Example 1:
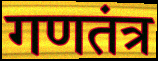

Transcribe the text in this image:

गणतंत्र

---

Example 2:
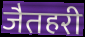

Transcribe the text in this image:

जैतहरी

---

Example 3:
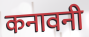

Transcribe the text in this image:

कनावनी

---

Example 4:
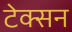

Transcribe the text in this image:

टेक्सन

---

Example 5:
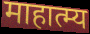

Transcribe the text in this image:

माहात्म्य